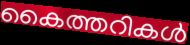
കൈത്തറികൾ